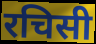
रचिसी